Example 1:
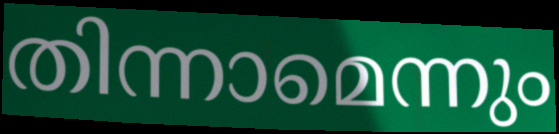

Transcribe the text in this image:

തിന്നാമെന്നും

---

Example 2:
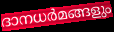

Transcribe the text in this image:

ദാനധർമങ്ങളും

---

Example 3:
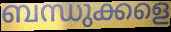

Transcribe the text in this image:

ബന്ധുക്കളെ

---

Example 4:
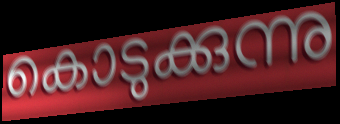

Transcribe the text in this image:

കൊടുക്കുന്നു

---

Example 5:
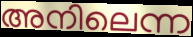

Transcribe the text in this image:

അനിലെന്ന